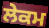
ਲੇਕਮ